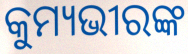
କୁମ୍ୟଭୀରଙ୍କ